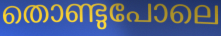
തൊണ്ടുപോലെ